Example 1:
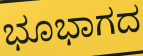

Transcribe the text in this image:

ಭೂಭಾಗದ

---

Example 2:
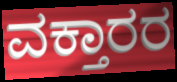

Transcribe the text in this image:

ವಕ್ತಾರರ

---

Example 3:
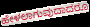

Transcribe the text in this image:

ಹೇಳಲಾಗುವುದಾದರೂ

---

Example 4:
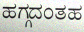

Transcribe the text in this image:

ಹಗ್ಗದಂತಹ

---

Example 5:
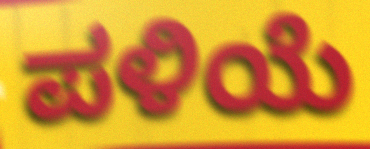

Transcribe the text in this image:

ಪಳಿಯೆ